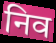
निव